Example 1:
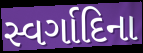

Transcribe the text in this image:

સ્વર્ગાદિના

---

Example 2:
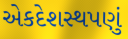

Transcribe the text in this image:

એકદેશસ્થપણું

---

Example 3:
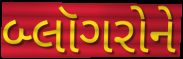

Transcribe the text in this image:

બ્લૉગરોને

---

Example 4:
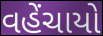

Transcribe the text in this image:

વહેંચાયો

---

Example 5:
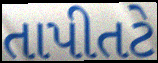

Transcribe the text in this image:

તાપીતટે